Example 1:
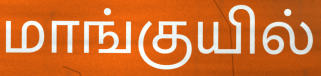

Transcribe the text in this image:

மாங்குயில்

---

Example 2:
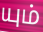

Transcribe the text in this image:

யும்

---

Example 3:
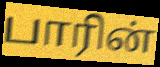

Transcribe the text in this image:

பாரின்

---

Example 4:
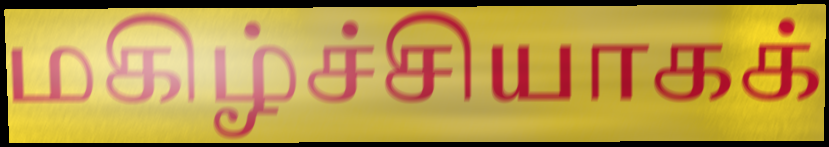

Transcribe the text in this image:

மகிழ்ச்சியாகக்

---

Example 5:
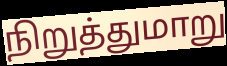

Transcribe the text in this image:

நிறுத்துமாறு